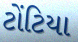
ટોંટિયા